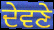
ਦੇਵਣੇ